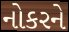
નોકરને